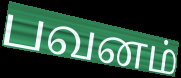
பவனம்